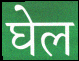
घेल